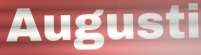
Augusti